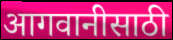
आगवानीसाठी